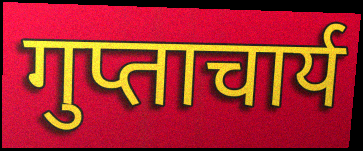
गुप्ताचार्य